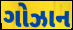
ગોઝાન